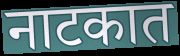
नाटकात